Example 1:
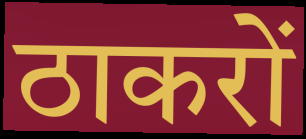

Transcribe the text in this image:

ठाकरों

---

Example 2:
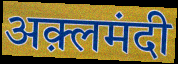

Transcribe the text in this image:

अक़्लमंदी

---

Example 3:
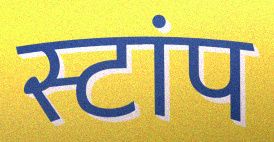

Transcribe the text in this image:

स्टांप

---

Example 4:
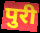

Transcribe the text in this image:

पुरी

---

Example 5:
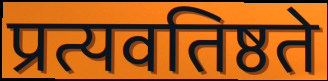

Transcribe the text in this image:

प्रत्यवतिष्ठते